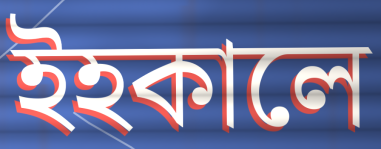
ইহকালে